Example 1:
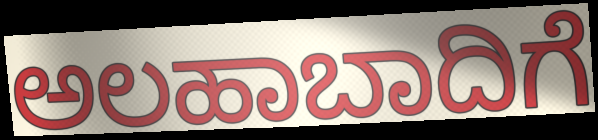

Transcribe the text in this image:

ಅಲಹಾಬಾದಿಗೆ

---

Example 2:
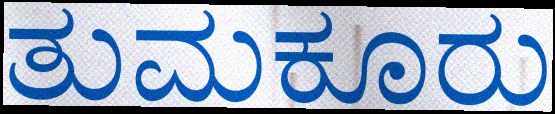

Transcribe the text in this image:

ತುಮಕೂರು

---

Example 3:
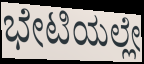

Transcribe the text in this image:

ಭೇಟಿಯಲ್ಲೇ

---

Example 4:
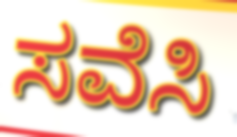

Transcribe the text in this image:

ಸವೆಸಿ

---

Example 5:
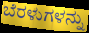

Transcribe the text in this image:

ಬೆರಳುಗಳನ್ನು